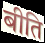
बीति